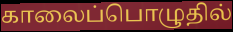
காலைப்பொழுதில்